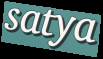
satya